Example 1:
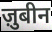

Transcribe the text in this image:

ज़ुबीन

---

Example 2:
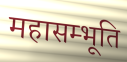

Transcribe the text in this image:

महासम्भूति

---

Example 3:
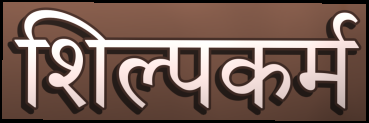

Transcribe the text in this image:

शिल्पकर्म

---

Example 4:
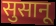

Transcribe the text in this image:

सुसानू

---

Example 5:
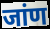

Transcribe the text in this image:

जांण